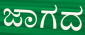
ಜಾಗದ